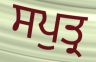
ਸਪੁਤ੍ਰ